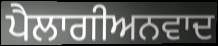
ਪੈਲਾਗੀਅਨਵਾਦ